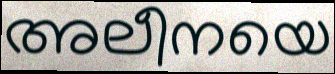
അലീനയെ